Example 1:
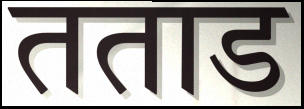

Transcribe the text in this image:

तताड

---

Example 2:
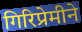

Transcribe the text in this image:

गिरिप्रेमीने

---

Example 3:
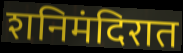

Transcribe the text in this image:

शनिमंदिरात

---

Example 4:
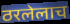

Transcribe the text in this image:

ठरलेलाच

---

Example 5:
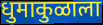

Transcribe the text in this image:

धुमाकुळाला